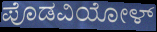
ಪೊಡವಿಯೋಳ್